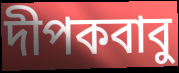
দীপকবাবু